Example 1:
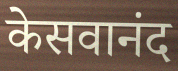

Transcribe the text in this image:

केसवानंद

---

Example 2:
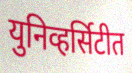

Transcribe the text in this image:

युनिव्हर्सिटीत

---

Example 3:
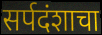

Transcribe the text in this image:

सर्पदंशाचा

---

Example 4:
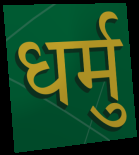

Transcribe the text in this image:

धर्मु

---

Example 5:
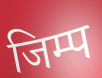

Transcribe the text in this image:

जिम्प